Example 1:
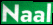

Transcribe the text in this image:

Naal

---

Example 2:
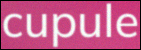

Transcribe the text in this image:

cupule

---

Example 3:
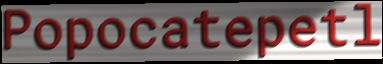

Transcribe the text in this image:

Popocatepetl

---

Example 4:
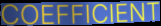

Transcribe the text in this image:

COEFFICIENT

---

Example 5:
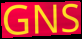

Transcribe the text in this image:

GNS